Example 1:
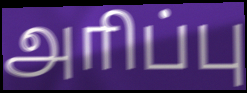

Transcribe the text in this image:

அரிப்பு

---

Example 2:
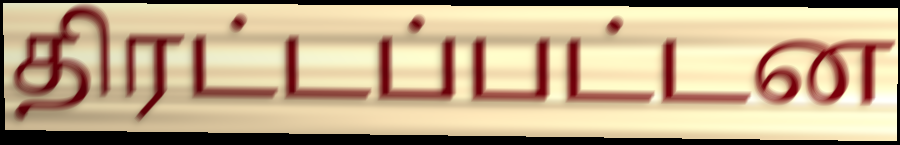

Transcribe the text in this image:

திரட்டப்பட்டன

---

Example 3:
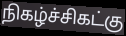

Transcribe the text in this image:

நிகழ்ச்சிகட்கு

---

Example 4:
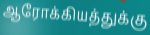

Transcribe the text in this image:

ஆரோக்கியத்துக்கு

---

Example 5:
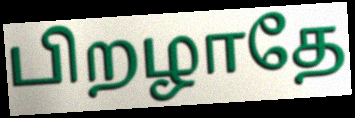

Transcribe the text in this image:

பிறழாதே